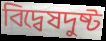
বিদ্বেষদুষ্ট